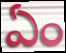
ఏం